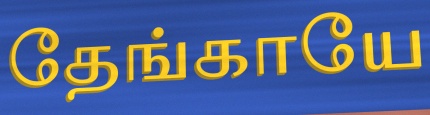
தேங்காயே